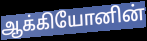
ஆக்கியோனின்